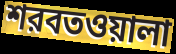
শরবতওয়ালা